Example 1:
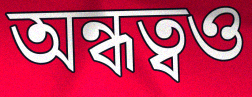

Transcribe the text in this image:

অন্ধত্বও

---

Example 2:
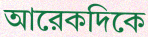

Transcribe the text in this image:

আরেকদিকে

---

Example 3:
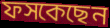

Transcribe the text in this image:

ফসকেছেন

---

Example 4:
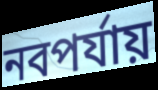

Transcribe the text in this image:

নবপর্যায়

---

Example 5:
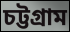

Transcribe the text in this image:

চট্টগ্রাম